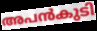
അപൻകുടി